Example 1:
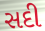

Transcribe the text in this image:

સદી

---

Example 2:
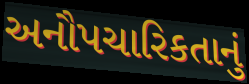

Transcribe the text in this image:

અનૌપચારિકતાનું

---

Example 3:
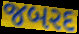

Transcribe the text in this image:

જબરદ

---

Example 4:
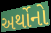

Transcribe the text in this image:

અર્થોનો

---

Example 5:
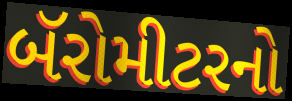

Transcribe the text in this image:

બૅરોમીટરનો